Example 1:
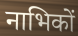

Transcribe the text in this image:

नाभिकों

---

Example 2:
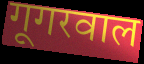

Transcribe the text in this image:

गूगरवाल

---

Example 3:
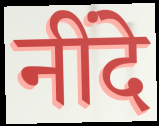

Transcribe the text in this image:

नींदे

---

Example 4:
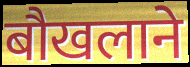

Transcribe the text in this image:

बौखलाने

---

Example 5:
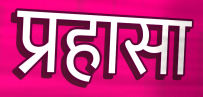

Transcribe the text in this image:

प्रहासा